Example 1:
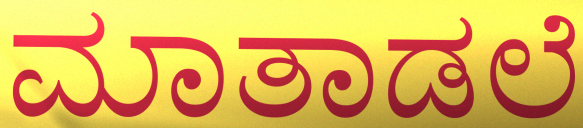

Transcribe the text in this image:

ಮಾತಾಡಲೆ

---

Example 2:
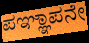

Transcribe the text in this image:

ಪಞ್ಞಾಪನೇ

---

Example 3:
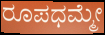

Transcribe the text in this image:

ರೂಪಧಮ್ಮೇ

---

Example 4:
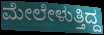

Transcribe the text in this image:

ಮೇಲೇಳುತ್ತಿದ್ದ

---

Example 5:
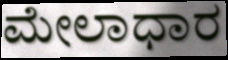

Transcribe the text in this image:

ಮೇಲಾಧಾರ